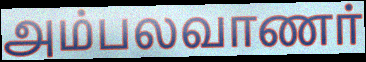
அம்பலவாணர்